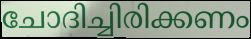
ചോദിച്ചിരിക്കണം